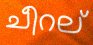
ചീറല്